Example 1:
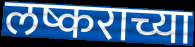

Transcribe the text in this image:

लष्कराच्या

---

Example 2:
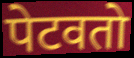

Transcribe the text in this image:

पेटवतो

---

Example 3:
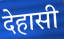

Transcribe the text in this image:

देहासी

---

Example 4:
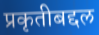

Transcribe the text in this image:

प्रकृतीबद्दल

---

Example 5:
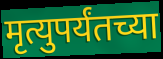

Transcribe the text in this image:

मृत्युपर्यंतच्या